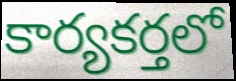
కార్యకర్తలో